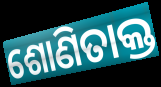
ଶୋଣିତାକ୍ତ